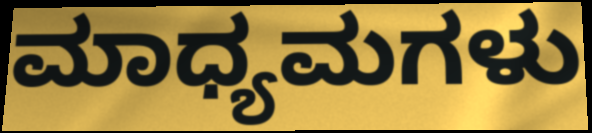
ಮಾಧ್ಯಮಗಳು